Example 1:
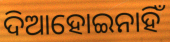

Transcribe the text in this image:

ଦିଆହୋଇନାହିଁ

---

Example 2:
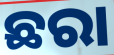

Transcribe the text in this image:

ଛରା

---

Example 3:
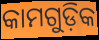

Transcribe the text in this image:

କାମଗୁଡ଼ିକ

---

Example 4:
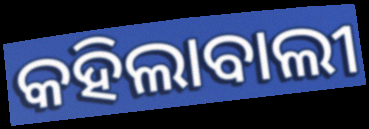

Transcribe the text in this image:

କହିଲାବାଲୀ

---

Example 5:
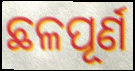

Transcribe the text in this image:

ଛଳପୂର୍ଣ